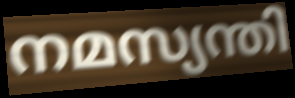
നമസ്യന്തി